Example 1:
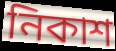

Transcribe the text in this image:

নিকাশ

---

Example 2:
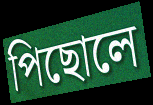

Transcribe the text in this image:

পিছোলে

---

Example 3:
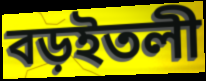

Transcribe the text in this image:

বড়ইতলী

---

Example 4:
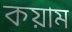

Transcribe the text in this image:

কয়াম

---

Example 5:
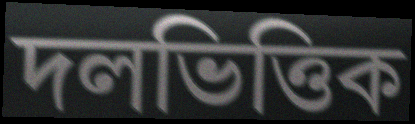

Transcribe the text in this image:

দলভিত্তিক